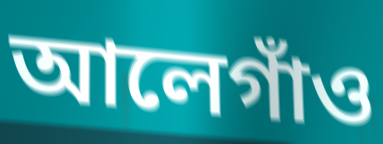
আলেগাঁও